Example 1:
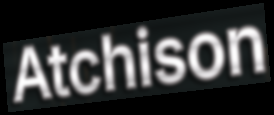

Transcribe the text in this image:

Atchison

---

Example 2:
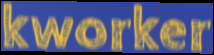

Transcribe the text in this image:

kworker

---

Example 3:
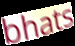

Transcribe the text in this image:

bhats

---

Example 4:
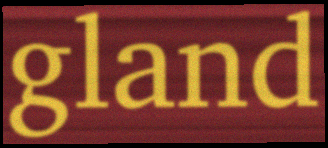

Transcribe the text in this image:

gland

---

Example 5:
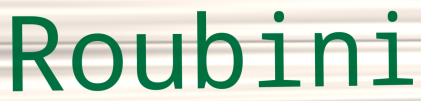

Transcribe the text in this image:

Roubini